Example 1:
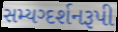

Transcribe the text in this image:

સમ્યગ્દર્શનરૂપી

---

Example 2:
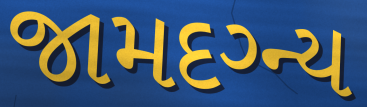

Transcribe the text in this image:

જામદગ્ન્ય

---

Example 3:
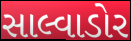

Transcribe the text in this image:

સાલ્વાડોર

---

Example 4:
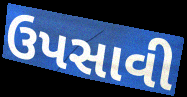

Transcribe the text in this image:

ઉપસાવી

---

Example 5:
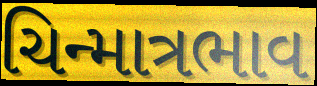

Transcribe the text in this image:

ચિન્માત્રભાવ